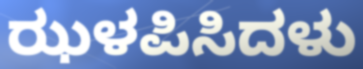
ಝಳಪಿಸಿದಳು